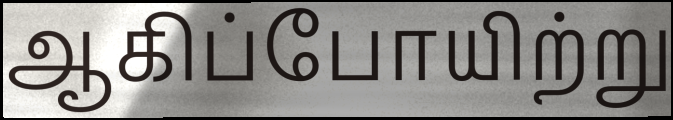
ஆகிப்போயிற்று